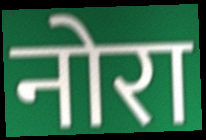
नोरा